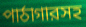
পাঠাগারসহ